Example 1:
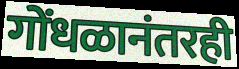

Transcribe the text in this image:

गोंधळानंतरही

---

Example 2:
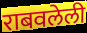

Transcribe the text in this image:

राबवलेली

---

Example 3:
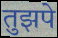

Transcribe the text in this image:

तुझपे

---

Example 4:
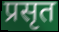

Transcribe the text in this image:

प्रसृत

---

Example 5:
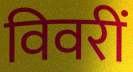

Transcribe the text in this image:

विवरीं